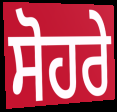
ਸੋਹਰੇ